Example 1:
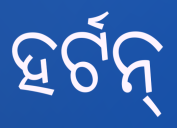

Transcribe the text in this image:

ହର୍ଟନ୍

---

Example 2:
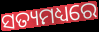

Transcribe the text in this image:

ସତ୍ୟମଧ୍ୟରେ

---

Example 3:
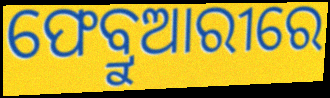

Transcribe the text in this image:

ଫେବ୍ରୁଆରୀରେ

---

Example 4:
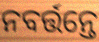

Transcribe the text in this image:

ନବର୍ତ୍ତନ୍ତେ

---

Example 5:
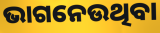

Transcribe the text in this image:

ଭାଗନେଉଥିବା